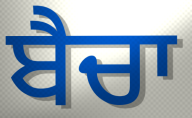
ਬੈਚਾ